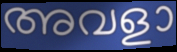
അവളാ